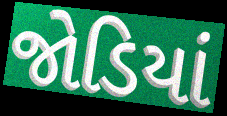
જોડિયાં